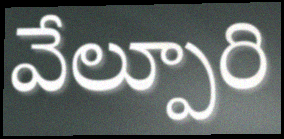
వేల్పూరి